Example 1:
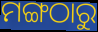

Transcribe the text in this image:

ମଙ୍ଗଠାରୁ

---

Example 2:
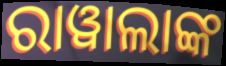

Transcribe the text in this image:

ରାୱାଲାଙ୍କ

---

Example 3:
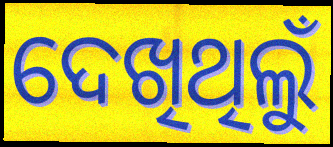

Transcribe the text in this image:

ଦେଖିଥିଲୁଁ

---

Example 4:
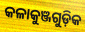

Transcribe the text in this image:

କଳାକୁଞ୍ଜଗୁଡ଼ିକ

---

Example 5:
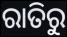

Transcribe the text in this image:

ରାତିରୁ